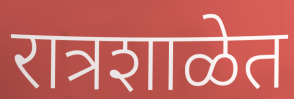
रात्रशाळेत